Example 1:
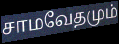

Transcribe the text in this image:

சாமவேதமும்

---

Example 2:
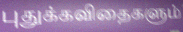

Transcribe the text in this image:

புதுக்கவிதைகளும்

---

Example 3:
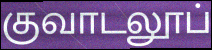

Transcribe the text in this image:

குவாடலூப்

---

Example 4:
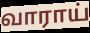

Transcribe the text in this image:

வாராய்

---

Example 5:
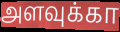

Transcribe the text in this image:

அளவுக்கா